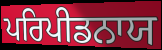
ਪਰਿਪੀਡਨਾਯ